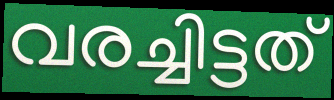
വരച്ചിട്ടത്